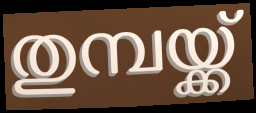
തുമ്പയ്ക്ക്